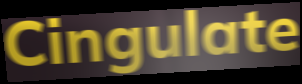
Cingulate